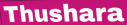
Thushara